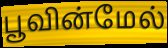
பூவின்மேல்